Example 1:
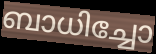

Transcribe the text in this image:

ബാധിച്ചോ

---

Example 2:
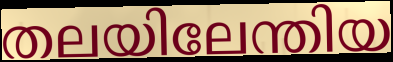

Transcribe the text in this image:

തലയിലേന്തിയ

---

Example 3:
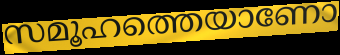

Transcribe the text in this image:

സമൂഹത്തെയാണോ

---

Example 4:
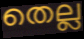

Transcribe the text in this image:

തെല്ല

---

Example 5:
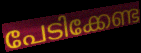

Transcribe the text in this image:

പേടിക്കേണ്ട